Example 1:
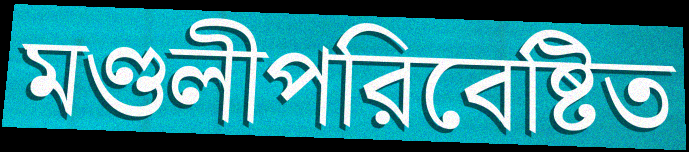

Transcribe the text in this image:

মণ্ডলীপরিবেষ্টিত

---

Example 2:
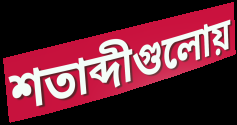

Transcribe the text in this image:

শতাব্দীগুলোয়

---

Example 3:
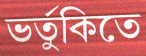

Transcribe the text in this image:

ভর্তুকিতে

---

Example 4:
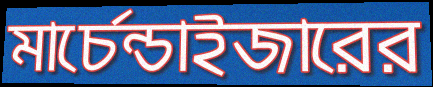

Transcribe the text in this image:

মার্চেন্ডাইজারের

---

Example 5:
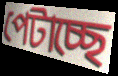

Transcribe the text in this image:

পেটাচ্ছে